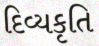
દિવ્યકૃતિ